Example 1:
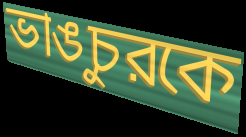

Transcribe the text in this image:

ভাঙচুরকে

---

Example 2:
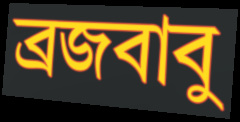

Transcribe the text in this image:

ব্রজবাবু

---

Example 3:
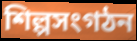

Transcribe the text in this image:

শিল্পসংগঠন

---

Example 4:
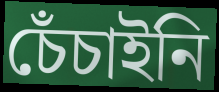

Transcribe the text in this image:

চেঁচাইনি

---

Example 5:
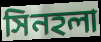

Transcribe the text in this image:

সিনহলা